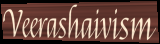
Veerashaivism